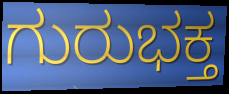
ಗುರುಭಕ್ತ